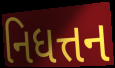
નિધત્તન